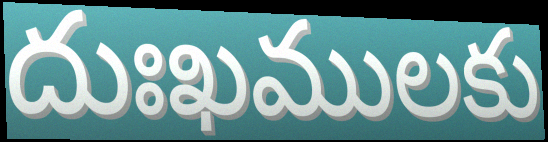
దుఃఖములకు